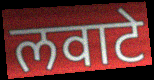
लवाटे